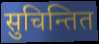
सुचिन्तित